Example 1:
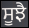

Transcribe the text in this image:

ਸੂਝੈ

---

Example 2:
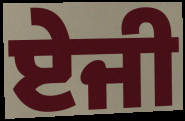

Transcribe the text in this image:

ਏਜੀ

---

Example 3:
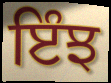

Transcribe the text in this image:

ਇੰਝ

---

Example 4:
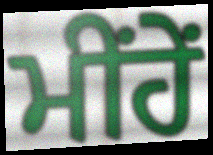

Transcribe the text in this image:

ਮੀਂਹੇਂ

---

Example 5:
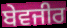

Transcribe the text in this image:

ਬੇਵਜੀਰ